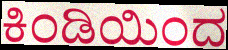
ಕಿಂಡಿಯಿಂದ